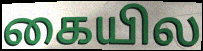
கையில